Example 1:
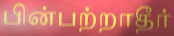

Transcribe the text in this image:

பின்பற்றாதீர்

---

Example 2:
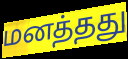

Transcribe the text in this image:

மனத்தது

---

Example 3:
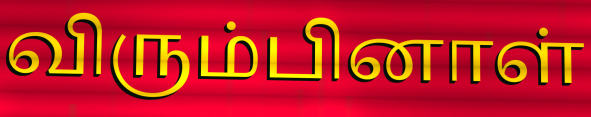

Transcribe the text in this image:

விரும்பினாள்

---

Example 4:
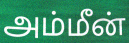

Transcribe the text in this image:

அம்மீன்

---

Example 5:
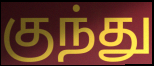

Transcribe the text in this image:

குந்து